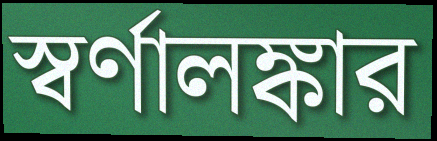
স্বর্ণালঙ্কার